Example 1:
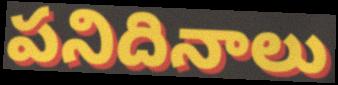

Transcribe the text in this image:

పనిదినాలు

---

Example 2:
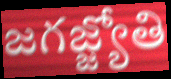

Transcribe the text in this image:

జగజ్జ్యోతి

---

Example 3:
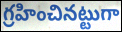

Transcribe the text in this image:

గ్రహించినట్టుగా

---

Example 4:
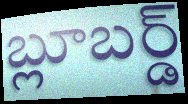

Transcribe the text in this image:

బ్లూబర్డ్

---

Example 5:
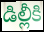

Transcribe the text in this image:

డిల్లీకి